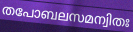
തപോബലസമന്വിതഃ